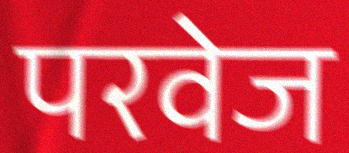
परवेज